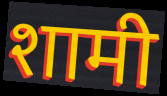
शामी